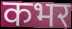
कभर